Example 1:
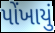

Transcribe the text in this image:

પોંખાયું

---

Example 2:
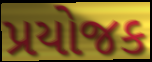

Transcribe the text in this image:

પ્રયોજક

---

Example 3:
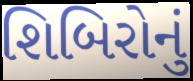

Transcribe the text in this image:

શિબિરોનું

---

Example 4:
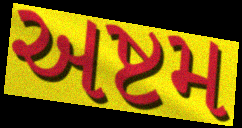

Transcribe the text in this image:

અષ્ટમ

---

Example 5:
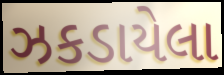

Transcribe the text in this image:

ઝકડાયેલા